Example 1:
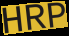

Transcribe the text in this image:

HRP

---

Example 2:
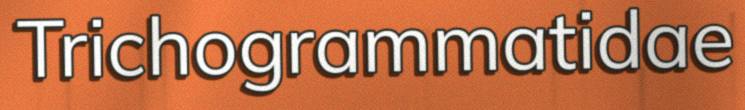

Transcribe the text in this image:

Trichogrammatidae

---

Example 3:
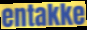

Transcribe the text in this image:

entakke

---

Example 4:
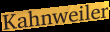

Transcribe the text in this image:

Kahnweiler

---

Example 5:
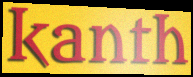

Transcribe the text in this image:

kanth